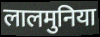
लालमुनिया